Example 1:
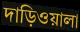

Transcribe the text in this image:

দাড়িওয়ালা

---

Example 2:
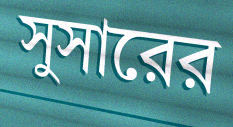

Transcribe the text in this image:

সুসারের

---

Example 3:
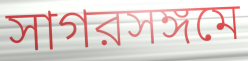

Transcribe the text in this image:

সাগরসঙ্গমে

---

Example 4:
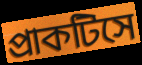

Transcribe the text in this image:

প্রাকটিসে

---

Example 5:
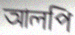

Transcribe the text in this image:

আলপি